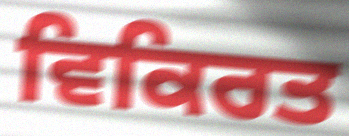
ਵਿਕਿਰਤ